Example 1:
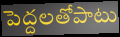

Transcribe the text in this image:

పెద్దలతోపాటు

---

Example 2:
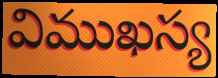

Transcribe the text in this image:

విముఖస్య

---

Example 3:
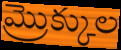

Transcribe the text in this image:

మ్రొక్కుల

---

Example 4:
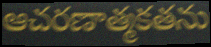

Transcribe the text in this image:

ఆచరణాత్మకతను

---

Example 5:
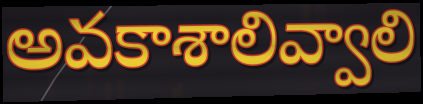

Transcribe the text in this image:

అవకాశాలివ్వాలి